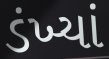
ડંખ્યાં